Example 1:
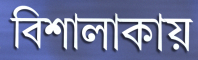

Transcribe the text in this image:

বিশালাকায়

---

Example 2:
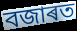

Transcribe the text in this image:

বজাৰত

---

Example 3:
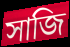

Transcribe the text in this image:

সাজি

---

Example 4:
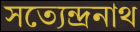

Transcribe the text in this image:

সত্যেন্দ্ৰনাথ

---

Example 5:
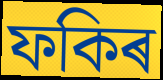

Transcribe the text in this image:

ফকিৰ